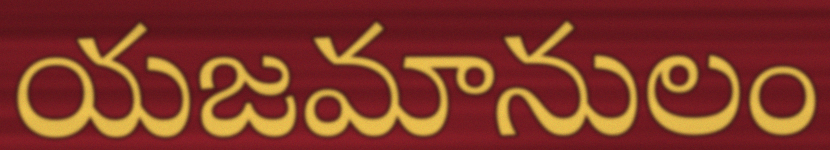
యజమానులం